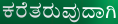
ಕರೆತರುವುದಾಗಿ